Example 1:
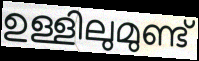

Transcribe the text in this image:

ഉള്ളിലുമുണ്ട്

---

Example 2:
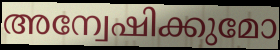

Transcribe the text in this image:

അന്വേഷിക്കുമോ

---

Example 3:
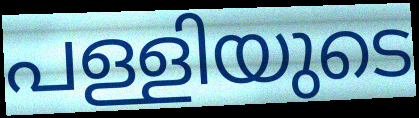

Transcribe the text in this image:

പള്ളിയുടെ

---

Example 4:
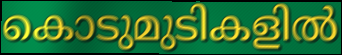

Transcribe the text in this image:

കൊടുമുടികളിൽ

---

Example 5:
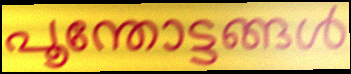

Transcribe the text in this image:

പൂന്തോട്ടങ്ങൾ